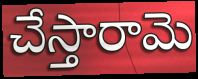
చేస్తారామె